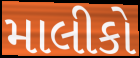
માલીકો